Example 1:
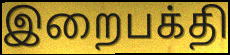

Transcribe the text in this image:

இறைபக்தி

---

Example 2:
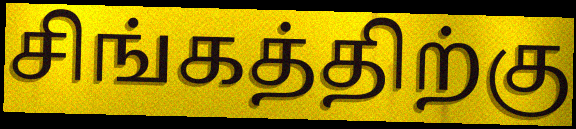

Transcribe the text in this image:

சிங்கத்திற்கு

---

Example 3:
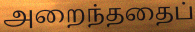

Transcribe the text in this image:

அறைந்ததைப்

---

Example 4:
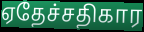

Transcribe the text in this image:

ஏதேச்சதிகார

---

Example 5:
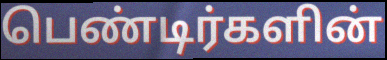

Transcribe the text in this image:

பெண்டிர்களின்